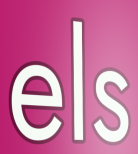
els